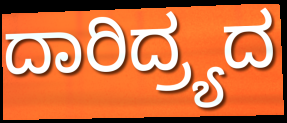
ದಾರಿದ್ರ್ಯದ